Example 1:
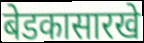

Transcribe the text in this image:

बेडकासारखे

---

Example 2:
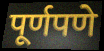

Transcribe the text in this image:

पूर्णपणे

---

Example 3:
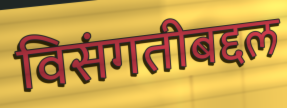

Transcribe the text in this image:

विसंगतीबद्दल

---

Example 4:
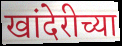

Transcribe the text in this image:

खांदेरीच्या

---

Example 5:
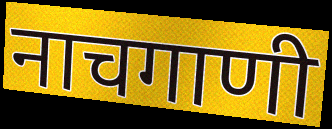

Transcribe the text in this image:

नाचगाणी